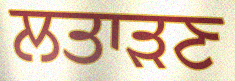
ਲਤਾੜਣ